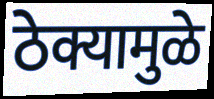
ठेक्यामुळे